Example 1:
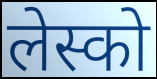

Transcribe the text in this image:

लेस्को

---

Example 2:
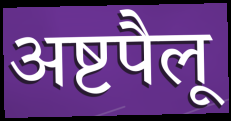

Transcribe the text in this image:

अष्टपैलू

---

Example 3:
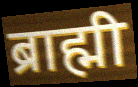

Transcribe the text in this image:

ब्राह्मी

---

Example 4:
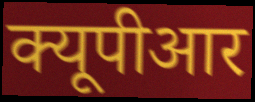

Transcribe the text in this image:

क्यूपीआर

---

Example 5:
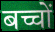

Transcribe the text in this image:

बच्चों